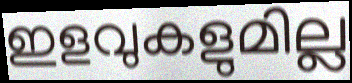
ഇളവുകളുമില്ല